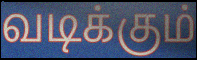
வடிக்கும்